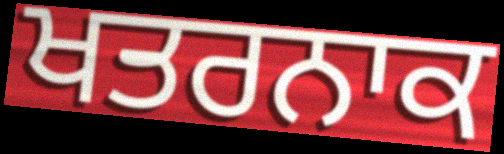
ਖਤਰਨਾਕ